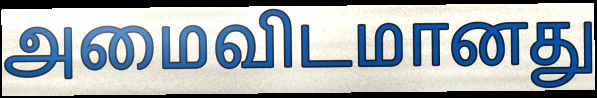
அமைவிடமானது